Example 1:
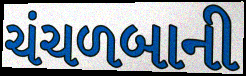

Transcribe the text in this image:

ચંચળબાની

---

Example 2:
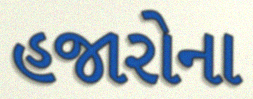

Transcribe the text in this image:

હજારોના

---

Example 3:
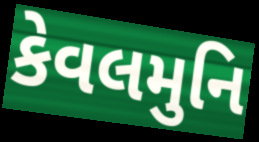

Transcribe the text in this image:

કેવલમુનિ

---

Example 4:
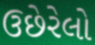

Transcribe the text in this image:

ઉછેરેલો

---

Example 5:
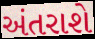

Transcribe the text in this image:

અંતરાશે